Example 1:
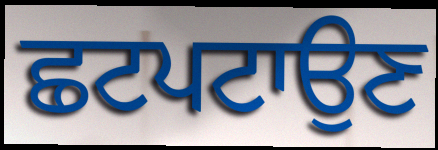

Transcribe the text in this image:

ਛਟਪਟਾਉਣ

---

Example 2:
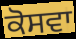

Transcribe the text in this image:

ਕੋਸਵਾ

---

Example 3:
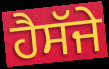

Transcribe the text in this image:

ਹੈਸੱਜੇ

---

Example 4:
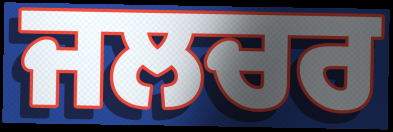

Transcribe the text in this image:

ਜਲਚਰ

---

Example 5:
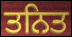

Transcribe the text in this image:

ਤਨਿਤ